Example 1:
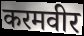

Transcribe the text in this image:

करमवीर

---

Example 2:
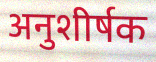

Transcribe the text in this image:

अनुशीर्षक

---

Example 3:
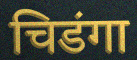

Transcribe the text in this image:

चिडंगा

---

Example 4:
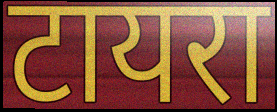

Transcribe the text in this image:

टायरा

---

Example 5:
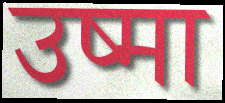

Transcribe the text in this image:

उष्मा